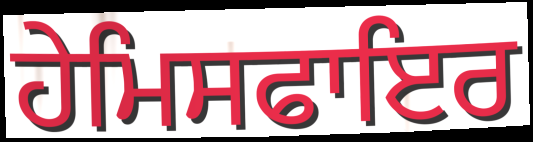
ਹੇਮਿਸਫਾਇਰ